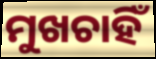
ମୁଖଚାହିଁ